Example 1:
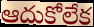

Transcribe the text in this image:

ఆదుకోలేక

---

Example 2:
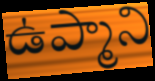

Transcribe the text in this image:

ఉప్మాని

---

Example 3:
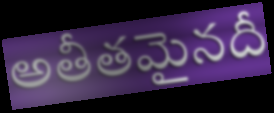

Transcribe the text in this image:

అతీతమైనదీ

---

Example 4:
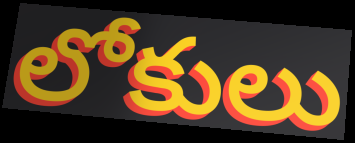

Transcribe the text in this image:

లోకులు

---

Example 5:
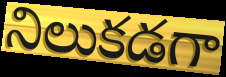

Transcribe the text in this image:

నిలుకడగా